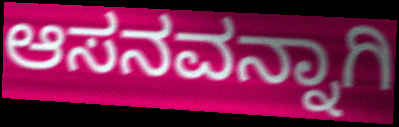
ಆಸನವನ್ನಾಗಿ